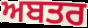
ਅਬਤਰ